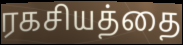
ரகசியத்தை